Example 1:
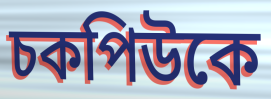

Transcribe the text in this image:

চকপিউকে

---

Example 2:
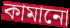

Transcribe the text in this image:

কামানো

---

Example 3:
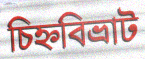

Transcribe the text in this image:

চিহ্নবিভ্রাট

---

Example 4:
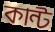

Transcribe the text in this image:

কান্ট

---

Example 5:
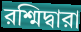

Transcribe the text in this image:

রশ্মিদ্বারা